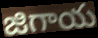
జిగాయ